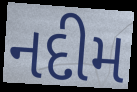
નદીમ